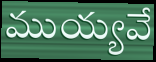
ముయ్యవే